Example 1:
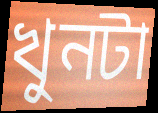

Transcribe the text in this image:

খুনটা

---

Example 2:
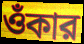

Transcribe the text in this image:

ওঁকার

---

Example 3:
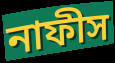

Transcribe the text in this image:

নাফীস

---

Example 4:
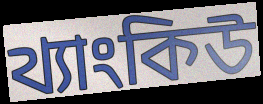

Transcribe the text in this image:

থ্যাংকিউ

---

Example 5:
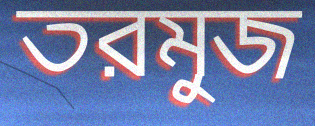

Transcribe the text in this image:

তরমুজ